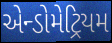
એન્ડોમેટ્રિયમ